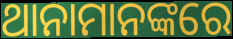
ଥାନାମାନଙ୍କରେ